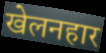
खेलनहार